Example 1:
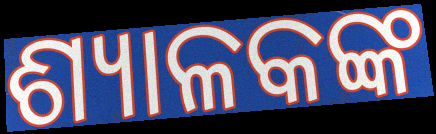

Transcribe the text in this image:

ଶ୍ୟାଳକଙ୍କ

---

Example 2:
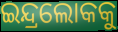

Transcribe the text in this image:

ଇନ୍ଦ୍ରଲୋକକୁ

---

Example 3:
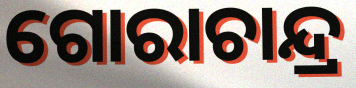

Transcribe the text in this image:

ଗୋରାଚାନ୍ଦ୍ର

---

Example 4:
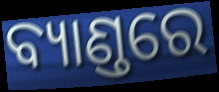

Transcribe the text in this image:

ବ୍ୟାଣ୍ଡରେ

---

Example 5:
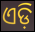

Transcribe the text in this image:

ଏଡ଼ି